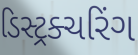
ડિસ્ટ્રક્ચરિંગ